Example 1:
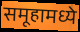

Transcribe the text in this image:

समूहामध्ये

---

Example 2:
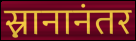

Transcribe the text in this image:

स्नानानंतर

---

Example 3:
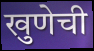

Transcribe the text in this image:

खुणेची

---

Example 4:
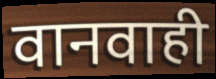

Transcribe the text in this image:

वानवाही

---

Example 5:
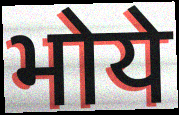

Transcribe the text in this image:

भोये